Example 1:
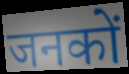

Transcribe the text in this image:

जनकों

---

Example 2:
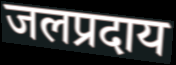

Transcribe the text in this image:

जलप्रदाय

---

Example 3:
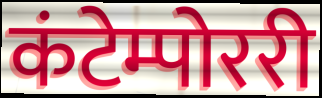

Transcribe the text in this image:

कंटेम्पोररी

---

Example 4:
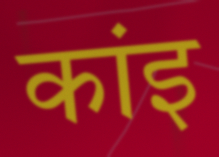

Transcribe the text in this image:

कांइ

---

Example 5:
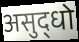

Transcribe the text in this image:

असुद्धो